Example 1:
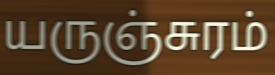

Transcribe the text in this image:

யருஞ்சுரம்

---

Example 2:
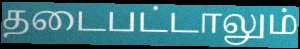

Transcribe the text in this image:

தடைபட்டாலும்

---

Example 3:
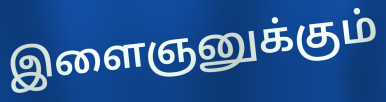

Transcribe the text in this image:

இளைஞனுக்கும்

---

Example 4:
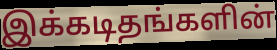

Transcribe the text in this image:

இக்கடிதங்களின்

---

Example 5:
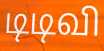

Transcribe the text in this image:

டிடிவி